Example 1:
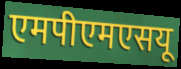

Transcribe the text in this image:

एमपीएमएसयू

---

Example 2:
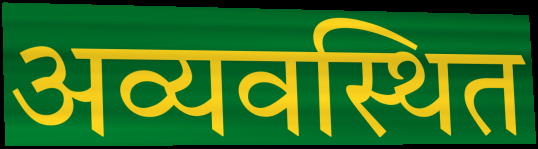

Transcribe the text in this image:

अव्यवस्थित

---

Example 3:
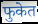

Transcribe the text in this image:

फुकेत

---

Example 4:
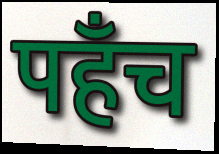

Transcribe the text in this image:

पहँच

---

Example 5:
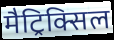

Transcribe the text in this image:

मैट्रिक्सिल